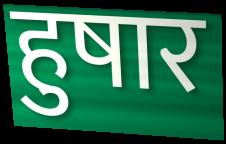
हुषार